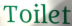
Toilet